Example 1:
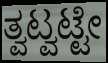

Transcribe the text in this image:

ತ್ವಟ್ವಟ್ಟೇ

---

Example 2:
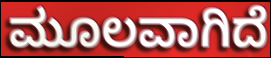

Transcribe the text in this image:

ಮೂಲವಾಗಿದೆ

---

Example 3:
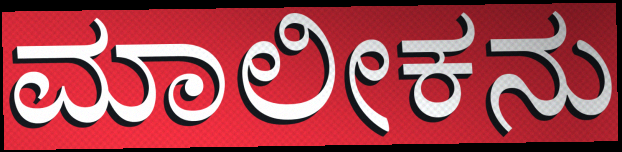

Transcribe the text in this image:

ಮಾಲೀಕನು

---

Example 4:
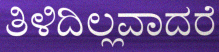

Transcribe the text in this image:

ತಿಳಿದಿಲ್ಲವಾದರೆ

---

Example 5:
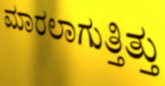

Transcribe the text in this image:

ಮಾರಲಾಗುತ್ತಿತ್ತು